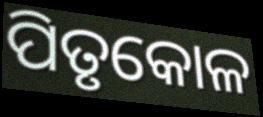
ପିତୃକୋଳ